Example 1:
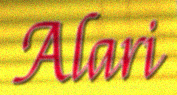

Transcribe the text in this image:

Alari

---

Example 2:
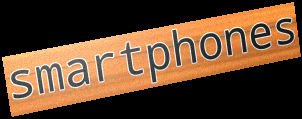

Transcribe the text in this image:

smartphones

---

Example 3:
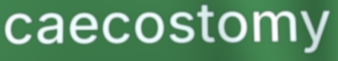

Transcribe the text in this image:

caecostomy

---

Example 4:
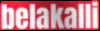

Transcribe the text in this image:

belakalli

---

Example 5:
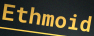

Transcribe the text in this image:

Ethmoid